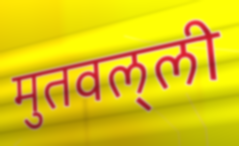
मुतवल्ली